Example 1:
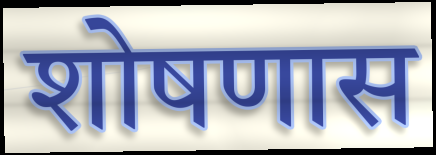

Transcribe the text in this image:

शोषणास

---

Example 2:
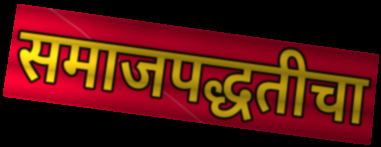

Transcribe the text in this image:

समाजपद्धतीचा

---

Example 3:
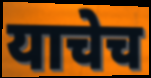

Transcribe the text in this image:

याचेच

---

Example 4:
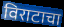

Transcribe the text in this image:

विराटाचा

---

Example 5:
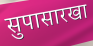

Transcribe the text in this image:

सुपासारखा